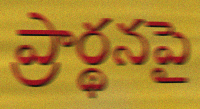
ప్రార్థనపై